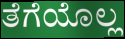
ತೆಗೆಯೊಲ್ಲ